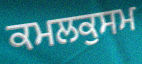
ਕਮਲਕੁਸਮ